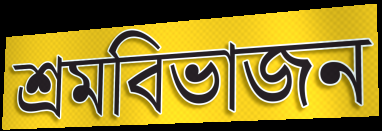
শ্রমবিভাজন